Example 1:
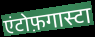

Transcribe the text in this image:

एंटोफ़गास्टा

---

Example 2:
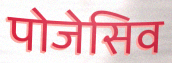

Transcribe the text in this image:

पोजेसिव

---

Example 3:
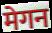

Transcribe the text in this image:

मेगन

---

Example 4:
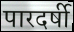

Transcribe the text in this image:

पारदर्षी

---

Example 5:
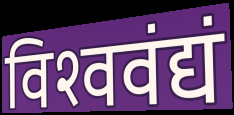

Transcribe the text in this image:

विश्ववंद्यं